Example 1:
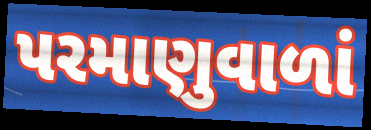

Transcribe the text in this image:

પરમાણુવાળાં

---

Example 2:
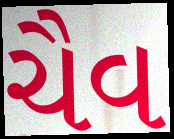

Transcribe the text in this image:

ચૈવ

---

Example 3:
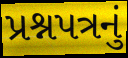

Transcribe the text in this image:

પ્રશ્નપત્રનું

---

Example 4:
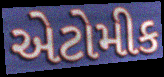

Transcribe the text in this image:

એટોમીક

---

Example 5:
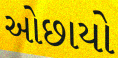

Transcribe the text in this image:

ઓછાયો